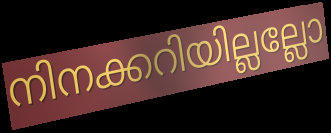
നിനക്കറിയില്ലല്ലോ